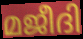
മജീദി